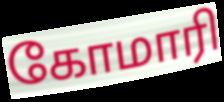
கோமாரி